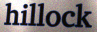
hillock